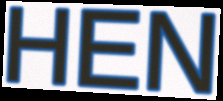
HEN